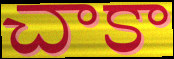
చాకా